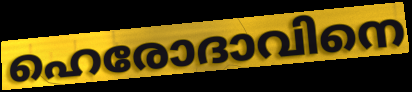
ഹെരോദാവിനെ